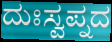
ದುಃಸ್ವಪ್ನದ